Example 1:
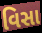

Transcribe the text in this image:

વિસા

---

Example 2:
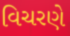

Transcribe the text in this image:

વિચરણે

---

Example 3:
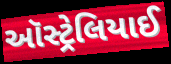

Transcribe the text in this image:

ઑસ્ટ્રેલિયાઈ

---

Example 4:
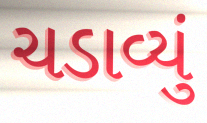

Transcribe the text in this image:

ચડાવ્યું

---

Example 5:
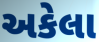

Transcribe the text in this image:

અકેલા